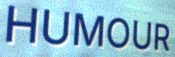
HUMOUR